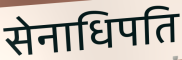
सेनाधिपति